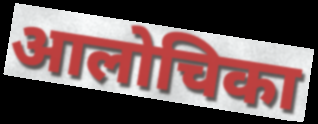
आलोचिका